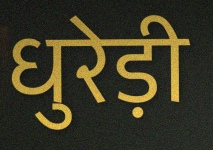
धुरेड़ी